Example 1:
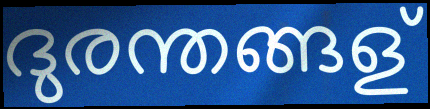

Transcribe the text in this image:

ദുരന്തങ്ങള്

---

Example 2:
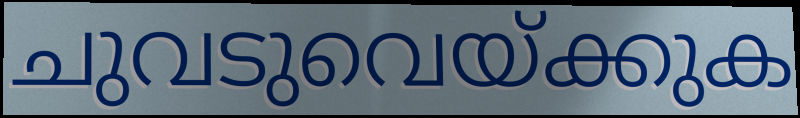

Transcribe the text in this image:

ചുവടുവെയ്ക്കുക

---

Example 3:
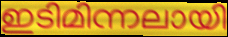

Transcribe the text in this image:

ഇടിമിന്നലായി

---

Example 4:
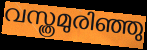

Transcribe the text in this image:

വസ്ത്രമുരിഞ്ഞു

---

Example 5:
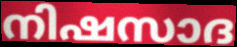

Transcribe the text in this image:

നിഷസാദ